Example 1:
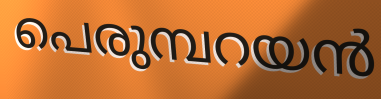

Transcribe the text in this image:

പെരുമ്പറയൻ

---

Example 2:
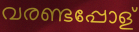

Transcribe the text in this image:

വരണ്ടപ്പോള്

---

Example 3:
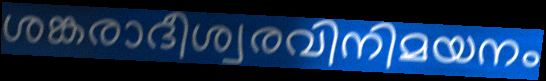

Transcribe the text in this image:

ശങ്കരാദീശ്വരവിനിമയനം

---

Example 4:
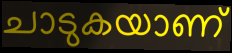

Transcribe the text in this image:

ചാടുകയാണ്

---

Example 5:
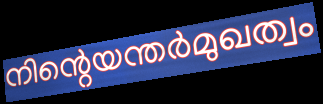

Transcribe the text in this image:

നിന്റെയന്തർമുഖത്വം